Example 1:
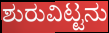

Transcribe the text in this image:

ಶುರುವಿಟ್ಟನು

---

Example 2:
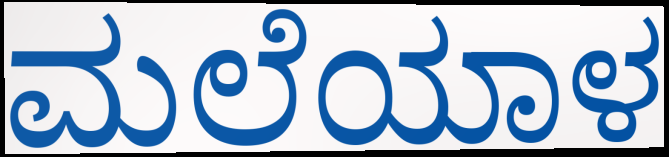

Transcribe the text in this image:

ಮಲೆಯಾಳ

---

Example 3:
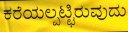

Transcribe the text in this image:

ಕರೆಯಲ್ಪಟ್ಟಿರುವುದು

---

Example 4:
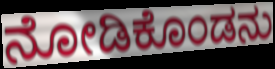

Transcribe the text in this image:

ನೋಡಿಕೊಂಡನು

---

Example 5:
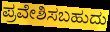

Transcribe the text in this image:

ಪ್ರವೇಶಿಸಬಹುದು